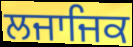
ਲਜਾਜਿਕ